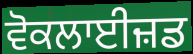
ਵੋਕਲਾਈਜ਼ਡ